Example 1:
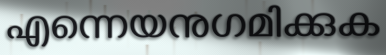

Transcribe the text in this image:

എന്നെയനുഗമിക്കുക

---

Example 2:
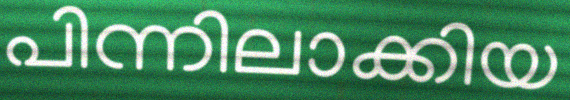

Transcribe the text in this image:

പിന്നിലാക്കിയ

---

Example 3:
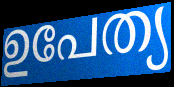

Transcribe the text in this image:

ഉപേത്യ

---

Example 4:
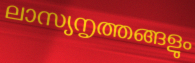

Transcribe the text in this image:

ലാസ്യനൃത്തങ്ങളും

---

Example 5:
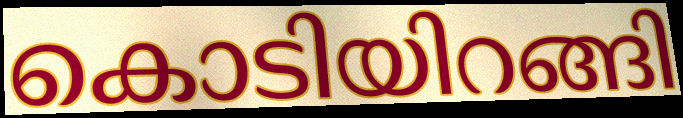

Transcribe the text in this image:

കൊടിയിറങ്ങി